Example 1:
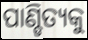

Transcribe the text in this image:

ପାଣ୍ଡିତ୍ୟକୁ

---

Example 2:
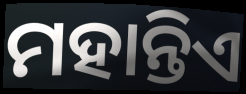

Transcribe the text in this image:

ମହାନ୍ତିଏ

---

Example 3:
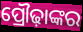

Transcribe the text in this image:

ପ୍ରୌଢ଼ାଙ୍କର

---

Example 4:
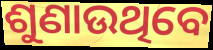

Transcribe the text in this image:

ଶୁଣାଉଥିବେ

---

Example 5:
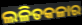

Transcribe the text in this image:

ଲଳିତକଳାର